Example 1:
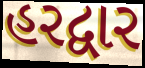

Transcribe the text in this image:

હરદ્વાર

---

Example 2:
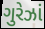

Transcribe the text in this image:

ગુરેઝાં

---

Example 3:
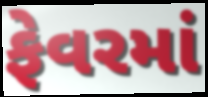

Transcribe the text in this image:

ફેવરમાં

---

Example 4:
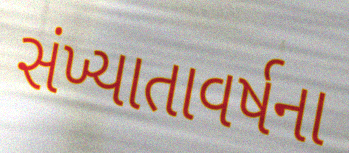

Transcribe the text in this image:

સંખ્યાતાવર્ષના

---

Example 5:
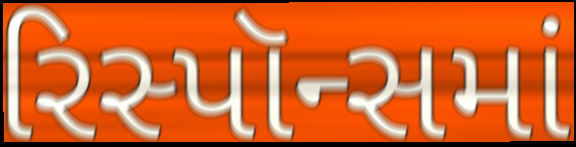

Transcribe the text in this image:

રિસ્પૉન્સમાં